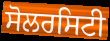
ਸੋਲਰਸਿਟੀ